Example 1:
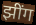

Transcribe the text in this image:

झींग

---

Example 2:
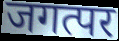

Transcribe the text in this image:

जगत्पर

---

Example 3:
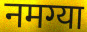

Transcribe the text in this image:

नमग्या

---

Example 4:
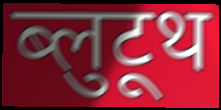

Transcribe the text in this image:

ब्लुटूथ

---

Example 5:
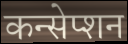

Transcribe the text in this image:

कन्सेप्शन